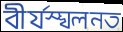
বীৰ্যস্খলনত